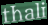
thali